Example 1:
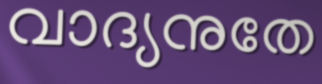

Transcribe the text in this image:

വാദ്യനുതേ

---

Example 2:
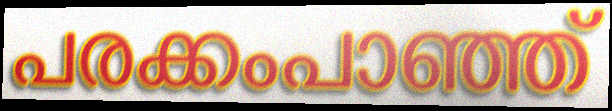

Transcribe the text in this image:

പരക്കംപാഞ്ഞ്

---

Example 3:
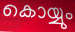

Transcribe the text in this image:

കൊയ്യും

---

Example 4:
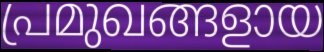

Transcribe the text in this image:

പ്രമുഖങ്ങളായ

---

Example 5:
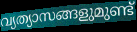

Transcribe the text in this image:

വ്യത്യാസങ്ങളുമുണ്ട്